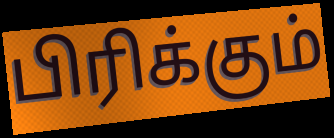
பிரிக்கும்